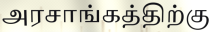
அரசாங்கத்திற்கு